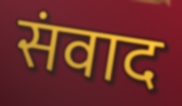
संवाद